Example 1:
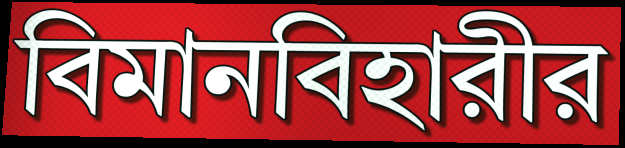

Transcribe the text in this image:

বিমানবিহারীর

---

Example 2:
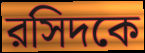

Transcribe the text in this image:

রসিদকে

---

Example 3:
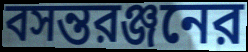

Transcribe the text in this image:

বসন্তরঞ্জনের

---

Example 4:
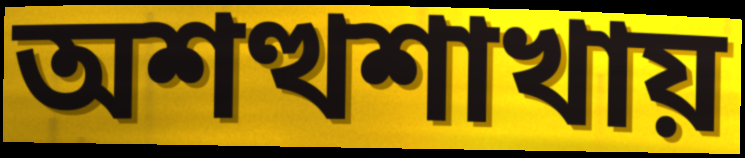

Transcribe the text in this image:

অশত্থশাখায়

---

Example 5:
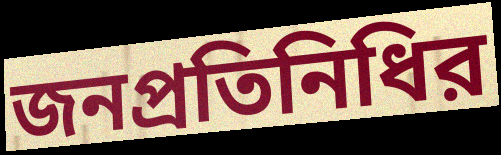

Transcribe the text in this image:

জনপ্রতিনিধির